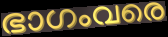
ഭാഗംവരെ